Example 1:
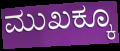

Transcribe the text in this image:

ಮುಖಕ್ಕೂ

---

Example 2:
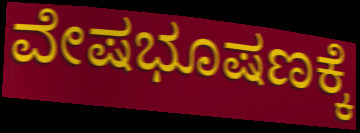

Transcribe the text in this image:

ವೇಷಭೂಷಣಕ್ಕೆ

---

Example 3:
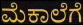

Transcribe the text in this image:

ಮೆಕಾಲೆಗೆ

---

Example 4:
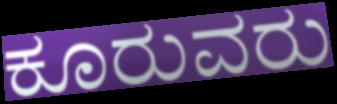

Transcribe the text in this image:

ಕೂರುವರು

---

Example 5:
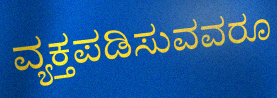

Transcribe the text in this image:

ವ್ಯಕ್ತಪಡಿಸುವವರೂ